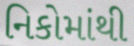
નિકોમાંથી